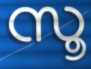
സൂ